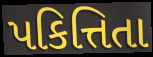
પકિત્તિતા